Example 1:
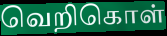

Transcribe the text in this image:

வெறிகொள்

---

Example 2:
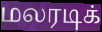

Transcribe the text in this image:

மலரடிக்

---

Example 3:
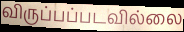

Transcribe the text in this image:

விருப்பப்படவில்லை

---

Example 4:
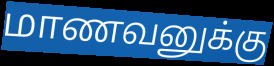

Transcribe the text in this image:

மாணவனுக்கு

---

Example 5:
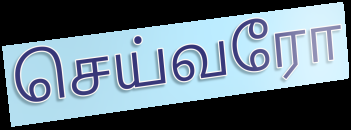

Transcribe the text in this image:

செய்வரோ